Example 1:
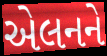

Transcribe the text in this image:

એલનને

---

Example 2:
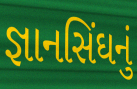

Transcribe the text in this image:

જ્ઞાનસિંઘનું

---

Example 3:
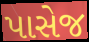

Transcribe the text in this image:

પાસેજ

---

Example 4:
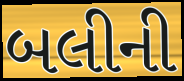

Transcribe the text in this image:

બલીની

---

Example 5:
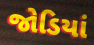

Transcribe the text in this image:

જોડિયાં